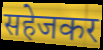
सहेजकर